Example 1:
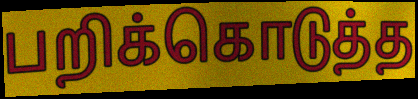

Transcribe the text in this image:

பறிக்கொடுத்த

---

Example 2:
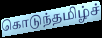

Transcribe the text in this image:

கொடுந்தமிழ்ச்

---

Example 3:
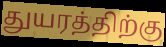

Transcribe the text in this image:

துயரத்திற்கு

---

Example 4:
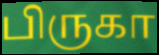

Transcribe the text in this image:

பிருகா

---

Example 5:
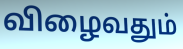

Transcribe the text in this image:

விழைவதும்